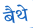
बैथे